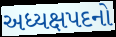
અધ્યક્ષપદનો